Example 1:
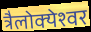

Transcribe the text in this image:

त्रैलोक्येश्वर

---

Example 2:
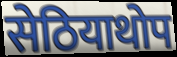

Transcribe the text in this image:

सेठियाथोप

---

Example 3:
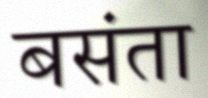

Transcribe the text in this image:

बसंता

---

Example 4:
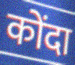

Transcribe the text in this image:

कोंदा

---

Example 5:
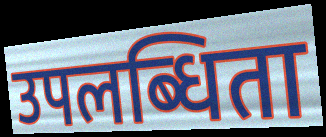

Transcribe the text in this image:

उपलब्धिता